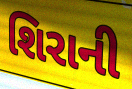
શિરાની